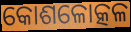
କୋଶଳୋତ୍କଳ